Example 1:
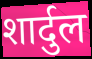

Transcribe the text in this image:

शार्दुल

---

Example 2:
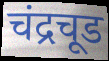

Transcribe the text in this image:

चंद्रचूड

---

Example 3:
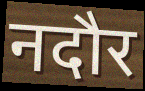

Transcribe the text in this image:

नदौर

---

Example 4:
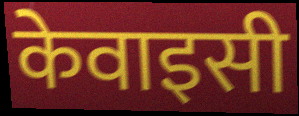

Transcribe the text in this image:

केवाइसी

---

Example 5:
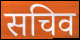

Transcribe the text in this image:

सचिव